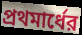
প্রথমার্ধের